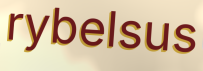
rybelsus